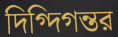
দিগ্দিগন্তর